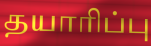
தயாரிப்பு